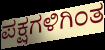
ಪಕ್ಷಗಳಿಗಿಂತ